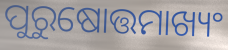
ପୁରୁଷୋତ୍ତମାଖ୍ୟଂ